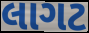
લાગટ